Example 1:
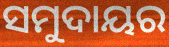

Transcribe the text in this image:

ସମୁଦାୟର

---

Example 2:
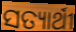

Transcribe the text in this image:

ସତ୍ୟାର୍ଥୀ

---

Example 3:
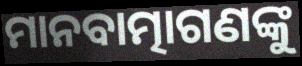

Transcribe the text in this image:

ମାନବାତ୍ମାଗଣଙ୍କୁ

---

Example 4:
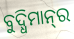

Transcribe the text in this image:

ବୁଦ୍ଧିମାନ୍‍ର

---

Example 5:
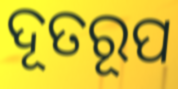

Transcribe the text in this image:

ଦୂତରୂପ